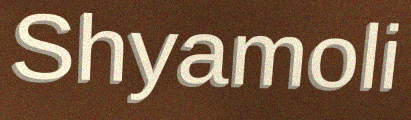
Shyamoli